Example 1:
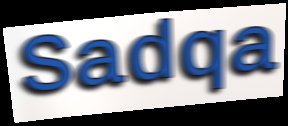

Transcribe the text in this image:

Sadqa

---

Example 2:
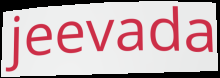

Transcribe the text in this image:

jeevada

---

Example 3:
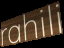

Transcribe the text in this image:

rahili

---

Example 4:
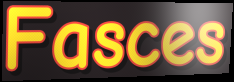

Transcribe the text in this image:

Fasces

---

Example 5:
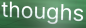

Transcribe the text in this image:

thoughs